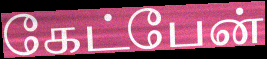
கேட்பேன்